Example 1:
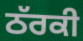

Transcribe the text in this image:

ਠੱਰਕੀ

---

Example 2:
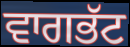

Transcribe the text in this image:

ਵਾਗਭੱਟ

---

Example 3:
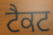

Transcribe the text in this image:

ਟੈਕਟ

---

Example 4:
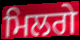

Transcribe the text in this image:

ਮਿਲਗੇ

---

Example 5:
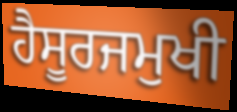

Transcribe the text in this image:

ਹੈਸੂਰਜਮੁਖੀ